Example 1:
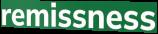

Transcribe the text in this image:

remissness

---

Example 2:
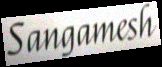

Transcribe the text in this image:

Sangamesh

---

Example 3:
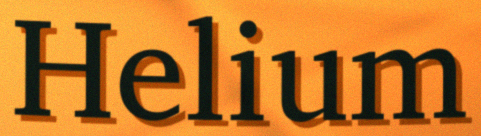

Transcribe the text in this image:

Helium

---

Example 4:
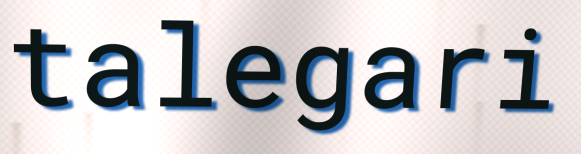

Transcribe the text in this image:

talegari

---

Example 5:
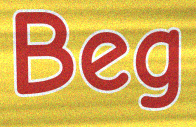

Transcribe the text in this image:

Beg